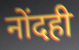
नोंदही